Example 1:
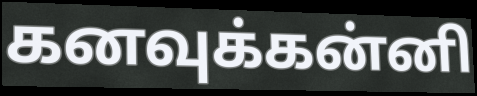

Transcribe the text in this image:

கனவுக்கன்னி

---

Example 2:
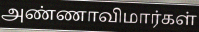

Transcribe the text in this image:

அண்ணாவிமார்கள்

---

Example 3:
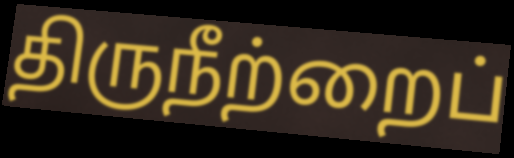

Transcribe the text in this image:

திருநீற்றைப்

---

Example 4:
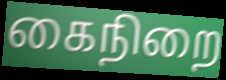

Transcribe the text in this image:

கைநிறை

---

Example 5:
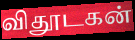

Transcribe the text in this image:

விதூடகன்